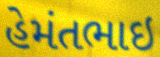
હેમંતભાઇ